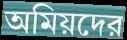
অমিয়দের